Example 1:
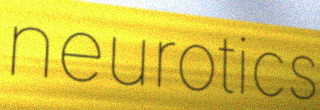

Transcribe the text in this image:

neurotics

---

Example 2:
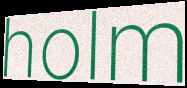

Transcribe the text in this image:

holm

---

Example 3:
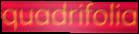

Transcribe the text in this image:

quadrifolia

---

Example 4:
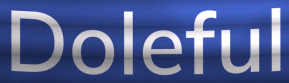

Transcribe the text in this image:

Doleful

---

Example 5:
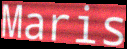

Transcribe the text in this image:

Maris